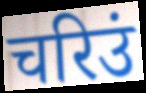
चरिउं